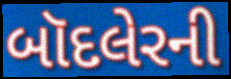
બૉદલેરની